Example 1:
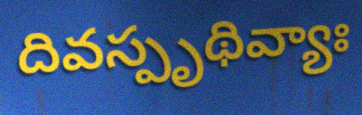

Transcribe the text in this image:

దివస్పృథివ్యాః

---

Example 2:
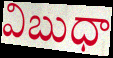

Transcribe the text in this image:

విబుధా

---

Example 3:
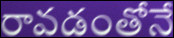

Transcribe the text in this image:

రావడంతోనే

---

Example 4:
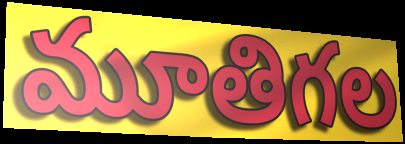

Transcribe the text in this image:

మూతిగల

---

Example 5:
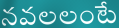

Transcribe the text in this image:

నవలలంటే